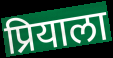
प्रियाला